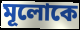
মূলোকে